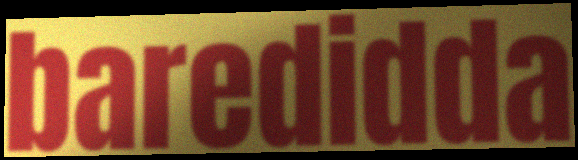
baredidda